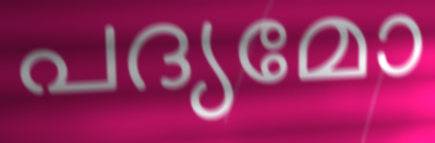
പദ്യമോ